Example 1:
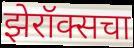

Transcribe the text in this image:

झेरॉक्सचा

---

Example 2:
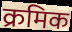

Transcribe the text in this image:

क्रमिक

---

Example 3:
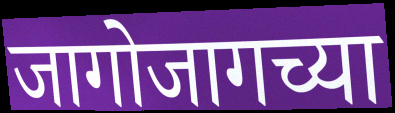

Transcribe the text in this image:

जागोजागच्या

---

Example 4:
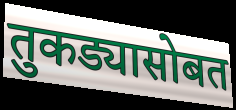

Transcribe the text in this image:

तुकड्यासोबत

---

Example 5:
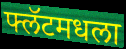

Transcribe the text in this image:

फ्लॅटमधला